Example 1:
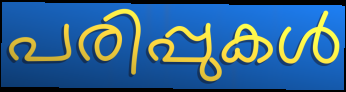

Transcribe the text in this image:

പരിപ്പുകൾ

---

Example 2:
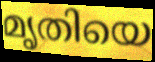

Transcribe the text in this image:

മൃതിയെ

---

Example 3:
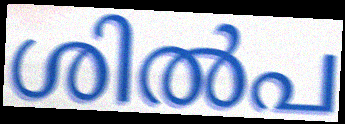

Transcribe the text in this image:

ശിൽപ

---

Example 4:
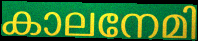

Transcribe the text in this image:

കാലനേമി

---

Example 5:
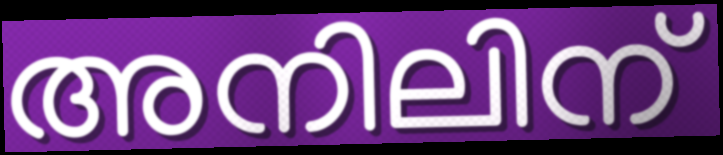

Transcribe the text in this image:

അനിലിന്